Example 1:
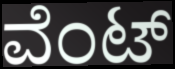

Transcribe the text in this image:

ವೆಂಟ್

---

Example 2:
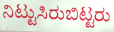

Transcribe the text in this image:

ನಿಟ್ಟುಸಿರುಬಿಟ್ಟರು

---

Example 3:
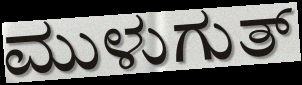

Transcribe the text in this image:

ಮುಳುಗುತ್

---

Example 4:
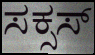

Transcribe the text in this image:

ಸಕ್ಸಸ್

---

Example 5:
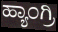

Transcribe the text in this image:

ಹ್ಯಾಂಗ್ರಿ